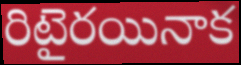
రిటైరయినాక